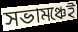
সভামঞ্চেই